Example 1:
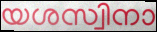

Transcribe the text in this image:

യശസ്വിനാ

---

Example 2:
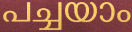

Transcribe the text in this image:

പച്ചയാം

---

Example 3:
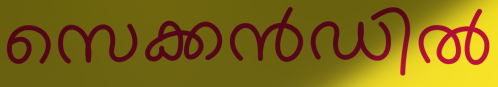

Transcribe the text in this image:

സെക്കൻഡിൽ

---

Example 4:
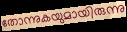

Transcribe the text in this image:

തോന്നുകയുമായിരുന്നു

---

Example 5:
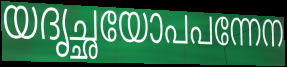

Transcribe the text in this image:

യദൃച്ഛയോപപന്നേന